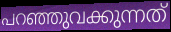
പറഞ്ഞുവക്കുന്നത്